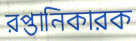
রপ্তানিকারক